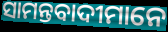
ସାମନ୍ତବାଦୀମାନେ